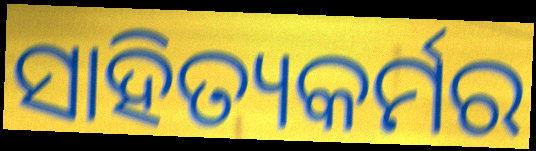
ସାହିତ୍ୟକର୍ମର